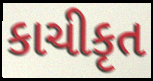
કાચીકૃત